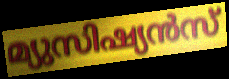
മ്യുസിഷ്യൻസ്